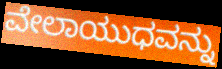
ವೇಲಾಯುಧವನ್ನು